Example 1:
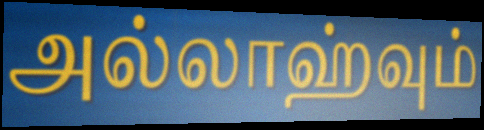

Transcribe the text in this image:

அல்லாஹ்வும்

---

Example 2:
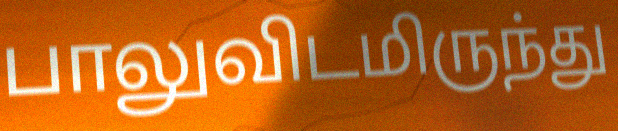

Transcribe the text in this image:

பாலுவிடமிருந்து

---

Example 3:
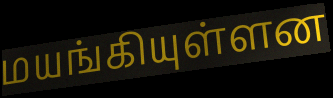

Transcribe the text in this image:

மயங்கியுள்ளன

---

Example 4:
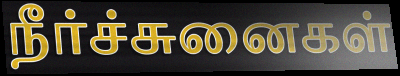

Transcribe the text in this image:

நீர்ச்சுனைகள்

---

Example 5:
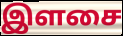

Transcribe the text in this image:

இளசை